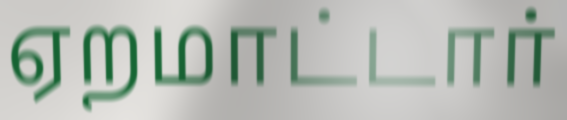
ஏறமாட்டார்